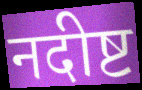
नदीष्ट